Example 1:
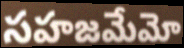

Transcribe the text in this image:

సహజమేమో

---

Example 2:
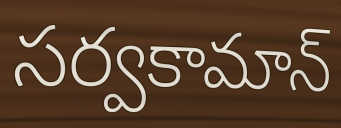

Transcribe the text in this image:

సర్వకామాన్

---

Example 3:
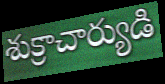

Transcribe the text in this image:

శుక్రాచార్యుడి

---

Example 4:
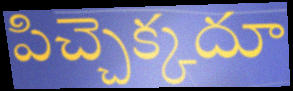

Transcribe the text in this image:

పిచ్చెక్కదూ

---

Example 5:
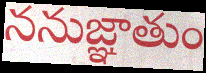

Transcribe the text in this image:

ననుజ్ఞాతుం